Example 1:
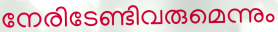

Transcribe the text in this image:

നേരിടേണ്ടിവരുമെന്നും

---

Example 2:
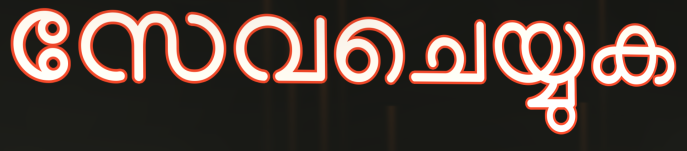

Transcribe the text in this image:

സേവചെയ്യുക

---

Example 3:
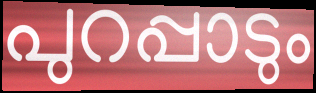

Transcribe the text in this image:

പുറപ്പാടും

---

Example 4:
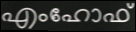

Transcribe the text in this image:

എംഹോഫ്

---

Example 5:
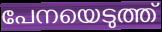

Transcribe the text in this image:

പേനയെടുത്ത്